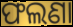
ଫଲଣା